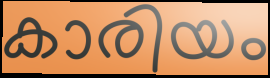
കാരിയം